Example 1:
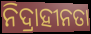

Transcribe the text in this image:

ନିଦ୍ରାହୀନତା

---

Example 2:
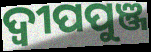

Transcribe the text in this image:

ଦ୍ୱୀପପୁଞ୍ଜ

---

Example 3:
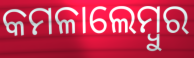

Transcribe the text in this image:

କମଳାଲେମ୍ବୁର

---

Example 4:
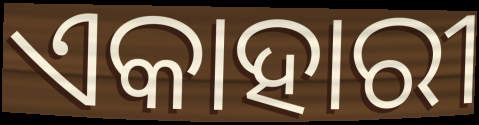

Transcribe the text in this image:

ଏକାହାରୀ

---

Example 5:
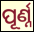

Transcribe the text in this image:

ପୂର୍ଣ୍ନ